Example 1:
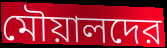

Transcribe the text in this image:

মৌয়ালদের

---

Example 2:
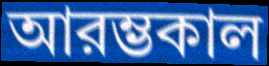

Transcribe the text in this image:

আরম্ভকাল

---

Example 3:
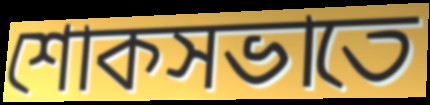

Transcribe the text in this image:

শোকসভাতে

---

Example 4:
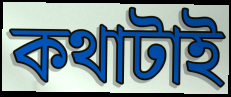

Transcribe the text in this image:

কথাটাই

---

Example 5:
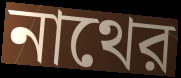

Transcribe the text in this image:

নাথের